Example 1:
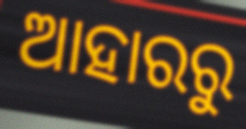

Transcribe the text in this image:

ଆହାରରୁ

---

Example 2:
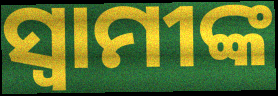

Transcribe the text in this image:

ସ୍ଵାମୀଙ୍କ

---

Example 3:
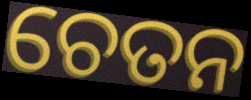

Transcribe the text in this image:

ଚେତନ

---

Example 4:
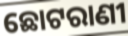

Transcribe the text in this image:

ଛୋଟରାଣୀ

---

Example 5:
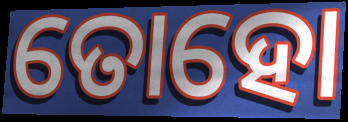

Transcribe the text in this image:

ତୋହୋ